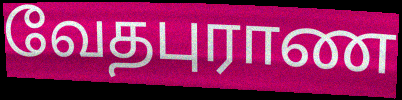
வேதபுராண